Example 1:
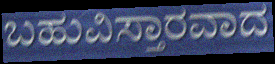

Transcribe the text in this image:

ಬಹುವಿಸ್ತಾರವಾದ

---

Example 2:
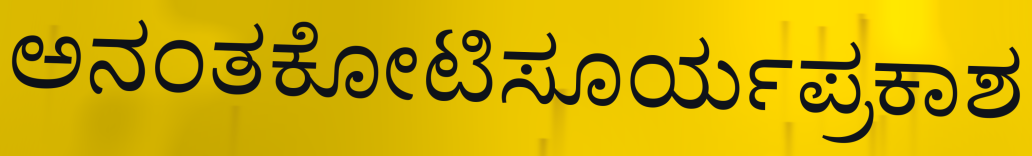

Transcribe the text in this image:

ಅನಂತಕೋಟಿಸೂರ್ಯಪ್ರಕಾಶ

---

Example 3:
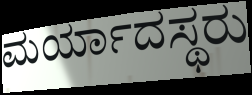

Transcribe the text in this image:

ಮರ್ಯಾದಸ್ಥರು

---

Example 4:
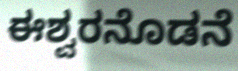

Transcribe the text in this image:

ಈಶ್ವರನೊಡನೆ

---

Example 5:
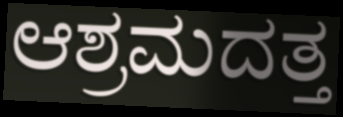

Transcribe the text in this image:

ಆಶ್ರಮದತ್ತ